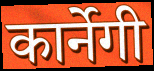
कार्नेगी